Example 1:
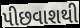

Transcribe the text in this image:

પીછવાશથી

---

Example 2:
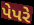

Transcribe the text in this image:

પેપરે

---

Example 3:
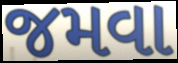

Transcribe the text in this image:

જમવા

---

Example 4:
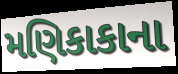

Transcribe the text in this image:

મણિકાકાના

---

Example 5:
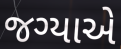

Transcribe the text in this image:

જગ્યાએ